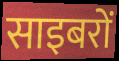
साइबरों